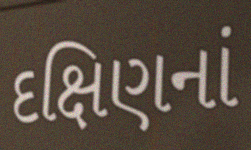
દક્ષિણનાં